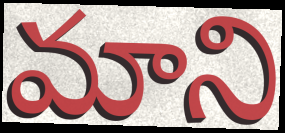
మాని